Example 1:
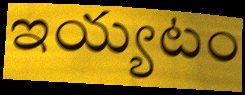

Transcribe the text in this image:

ఇయ్యటం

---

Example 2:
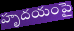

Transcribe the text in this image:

హృదయంపై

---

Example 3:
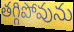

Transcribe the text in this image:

తగ్గిపోవును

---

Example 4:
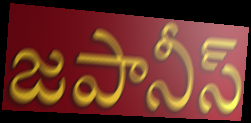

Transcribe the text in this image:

జపానీస్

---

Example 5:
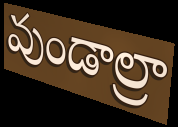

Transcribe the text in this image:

వుండాల్రా